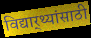
विद्यार्थ्यांसाठी